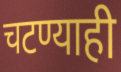
चटण्याही